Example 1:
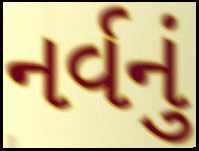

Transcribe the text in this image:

નર્વનું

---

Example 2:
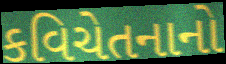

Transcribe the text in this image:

કવિચેતનાનો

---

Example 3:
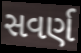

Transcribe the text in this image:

સવર્ણ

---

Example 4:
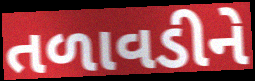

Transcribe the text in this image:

તળાવડીને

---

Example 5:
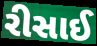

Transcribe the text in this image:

રીસાઈ